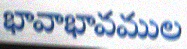
భావాభావముల